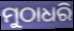
ମୁଠାଧରି